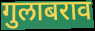
गुलाबराव